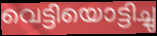
വെട്ടിയൊട്ടിച്ചു